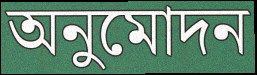
অনুমোদন